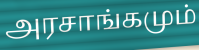
அரசாங்கமும்